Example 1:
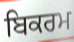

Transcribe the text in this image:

ਬਿਕਰਮ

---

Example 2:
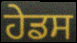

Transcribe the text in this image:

ਹੇਡਸ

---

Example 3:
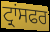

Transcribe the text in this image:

ਟ੍ਰਾਂਸਫਰ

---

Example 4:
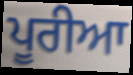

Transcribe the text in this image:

ਪੂਰੀਆ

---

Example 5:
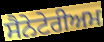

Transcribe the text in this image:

ਸੈਨੇਟੇਰੀਅਮ